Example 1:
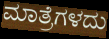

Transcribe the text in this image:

ಮಾತ್ರೆಗಳದು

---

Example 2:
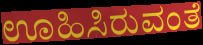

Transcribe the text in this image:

ಊಹಿಸಿರುವಂತೆ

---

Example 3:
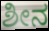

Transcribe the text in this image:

ಶೀನ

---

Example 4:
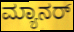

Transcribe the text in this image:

ಮ್ಯಾನರ್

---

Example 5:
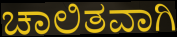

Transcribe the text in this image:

ಚಾಲಿತವಾಗಿ